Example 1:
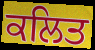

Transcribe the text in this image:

ਕਲਿਤ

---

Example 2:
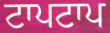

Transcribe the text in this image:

ਟਾਪਟਾਪ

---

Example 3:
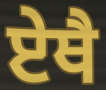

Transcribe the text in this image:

ਏਥੈ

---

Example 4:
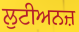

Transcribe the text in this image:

ਲੁਟੀਅਨਜ਼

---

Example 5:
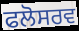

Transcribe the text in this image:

ਫਲੋਸਰਵ